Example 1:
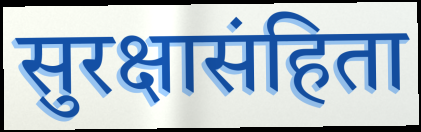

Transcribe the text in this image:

सुरक्षासंहिता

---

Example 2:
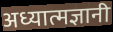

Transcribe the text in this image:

अध्यात्मज्ञानी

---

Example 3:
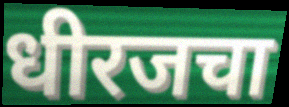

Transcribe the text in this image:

धीरजचा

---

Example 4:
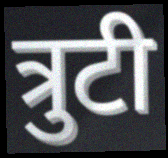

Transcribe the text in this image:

त्रुटी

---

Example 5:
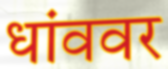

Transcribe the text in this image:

धांववर